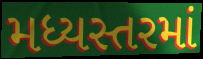
મધ્યસ્તરમાં